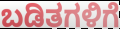
ಬಡಿತಗಳಿಗೆ